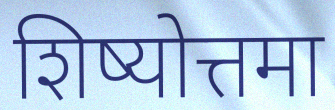
शिष्योत्तमा